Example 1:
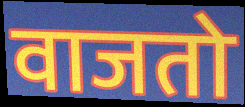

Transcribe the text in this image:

वाजतो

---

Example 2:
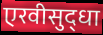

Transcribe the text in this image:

एरवीसुद्धा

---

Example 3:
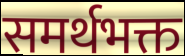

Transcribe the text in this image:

समर्थभक्त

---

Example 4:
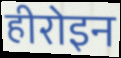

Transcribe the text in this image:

हीरोइन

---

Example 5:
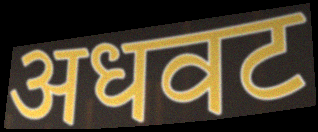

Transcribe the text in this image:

अधवट